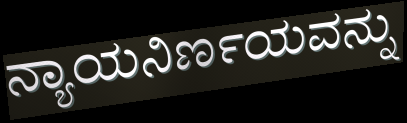
ನ್ಯಾಯನಿರ್ಣಯವನ್ನು